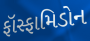
ફૉસ્ફામિડોન